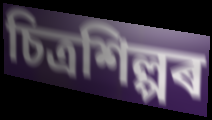
চিত্ৰশিল্পৰ